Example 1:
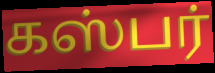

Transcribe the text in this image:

கஸ்பர்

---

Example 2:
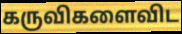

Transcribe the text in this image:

கருவிகளைவிட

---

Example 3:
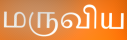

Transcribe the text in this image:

மருவிய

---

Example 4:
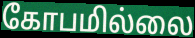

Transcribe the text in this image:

கோபமில்லை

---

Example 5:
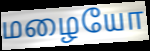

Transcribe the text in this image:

மழையோ